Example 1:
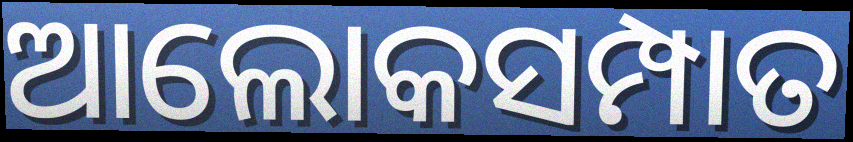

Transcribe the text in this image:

ଆଲୋକସମ୍ପାତ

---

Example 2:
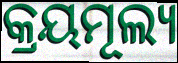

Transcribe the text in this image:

କ୍ରୟମୂଲ୍ୟ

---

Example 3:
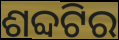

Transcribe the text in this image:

ଶବ୍ଦଟିର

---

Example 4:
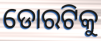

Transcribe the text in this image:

ଡୋରଟିକୁ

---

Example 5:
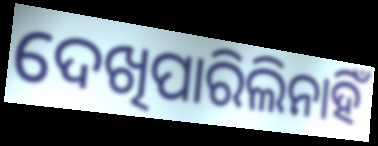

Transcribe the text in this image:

ଦେଖିପାରିଲିନାହିଁ